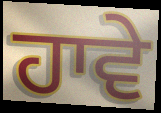
ਹਾਵੇ